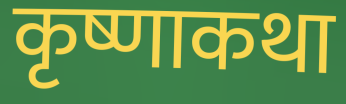
कृष्णाकथा